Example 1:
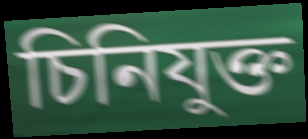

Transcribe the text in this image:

চিনিযুক্ত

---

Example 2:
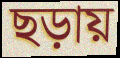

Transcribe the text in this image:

ছড়ায়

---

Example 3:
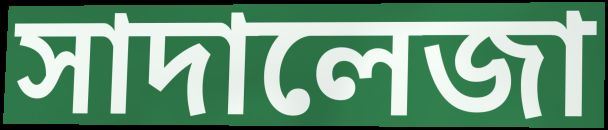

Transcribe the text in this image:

সাদালেজা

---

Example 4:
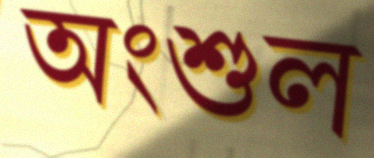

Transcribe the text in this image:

অংশুল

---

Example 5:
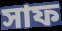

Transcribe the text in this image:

সাফ